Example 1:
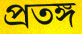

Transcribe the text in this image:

প্রতঙ্গ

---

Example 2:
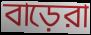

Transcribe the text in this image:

বাড়েরা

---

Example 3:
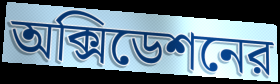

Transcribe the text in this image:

অক্সিডেশনের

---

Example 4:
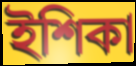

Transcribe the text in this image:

ইশিকা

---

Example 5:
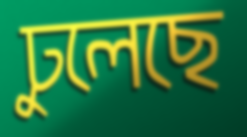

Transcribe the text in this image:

ঢুলেছে